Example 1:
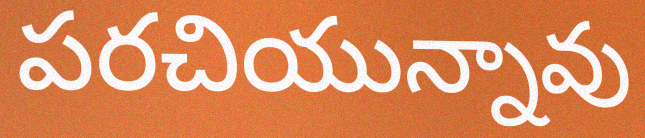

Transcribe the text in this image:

పరచియున్నావు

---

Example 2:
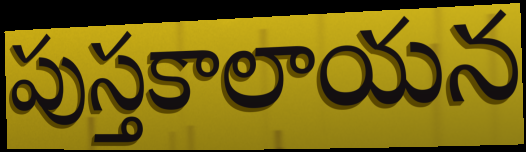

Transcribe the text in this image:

పుస్తకాలాయన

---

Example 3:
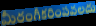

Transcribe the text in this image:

మీరంగీకరింపవలదు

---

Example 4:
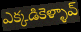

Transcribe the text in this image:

ఎక్కడికెళ్ళావ్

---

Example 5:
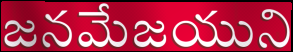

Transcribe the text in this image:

జనమేజయుని